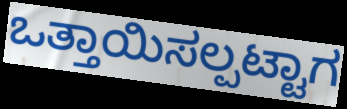
ಒತ್ತಾಯಿಸಲ್ಪಟ್ಟಾಗ